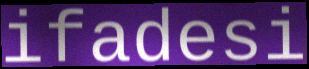
ifadesi